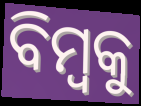
ବିମ୍ବକୁ